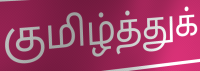
குமிழ்த்துக்